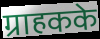
ग्राहकके